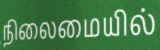
நிலைமையில்